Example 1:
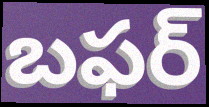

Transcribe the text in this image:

బఫర్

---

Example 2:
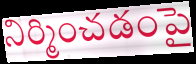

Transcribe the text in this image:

నిర్మించడంపై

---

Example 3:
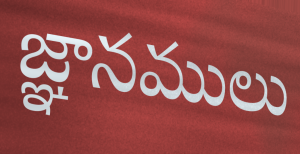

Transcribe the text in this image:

జ్ఞానములు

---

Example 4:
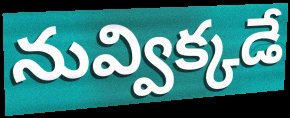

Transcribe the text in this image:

నువ్విక్కడే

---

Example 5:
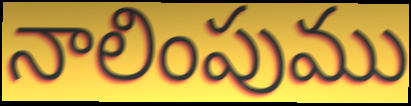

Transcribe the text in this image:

నాలింపుము